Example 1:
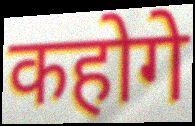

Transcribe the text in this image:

कहोगे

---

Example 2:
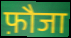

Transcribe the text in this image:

फ़ौजा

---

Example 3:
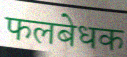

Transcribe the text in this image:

फलबेधक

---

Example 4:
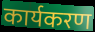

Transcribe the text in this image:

कार्यकरण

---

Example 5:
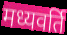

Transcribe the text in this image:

मध्यवर्ति